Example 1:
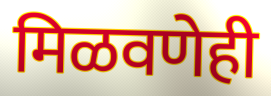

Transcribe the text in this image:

मिळवणेही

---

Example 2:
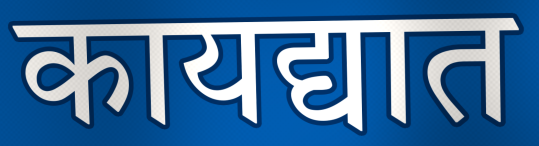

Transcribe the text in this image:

कायद्यात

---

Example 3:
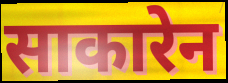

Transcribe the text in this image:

साकारेन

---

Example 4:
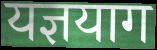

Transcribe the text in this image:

यज्ञयाग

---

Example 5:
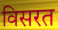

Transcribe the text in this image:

विसरत